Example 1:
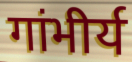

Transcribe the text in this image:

गांभीर्य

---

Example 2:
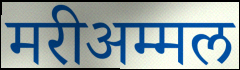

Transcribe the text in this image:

मरीअम्मल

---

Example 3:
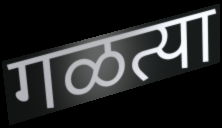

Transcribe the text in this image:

गळत्या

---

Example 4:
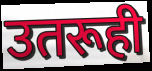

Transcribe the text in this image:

उतरूही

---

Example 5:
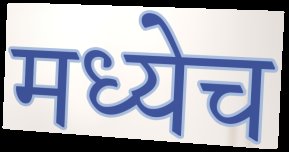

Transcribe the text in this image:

मध्येच